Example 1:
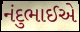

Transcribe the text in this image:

નંદુભાઈએ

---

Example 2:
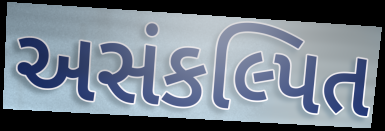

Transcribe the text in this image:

અસંકલ્પિત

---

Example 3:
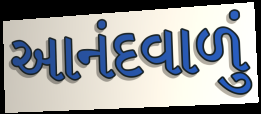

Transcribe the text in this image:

આનંદવાળું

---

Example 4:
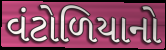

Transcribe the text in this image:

વંટોળિયાનો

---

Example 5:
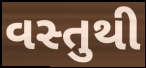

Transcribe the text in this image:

વસ્તુથી